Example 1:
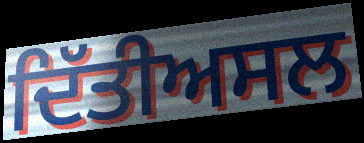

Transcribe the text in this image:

ਦਿੱਤੀਅਸਲ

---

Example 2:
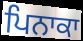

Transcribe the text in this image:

ਪਿਨਾਕਾ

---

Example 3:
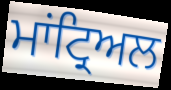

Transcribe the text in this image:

ਮਾਂਟ੍ਰਿਅਲ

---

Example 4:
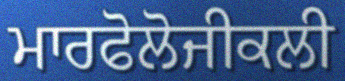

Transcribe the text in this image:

ਮਾਰਫੋਲੋਜੀਕਲੀ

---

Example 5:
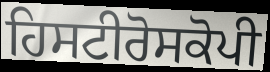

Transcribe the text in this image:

ਹਿਸਟੀਰੋਸਕੋਪੀ